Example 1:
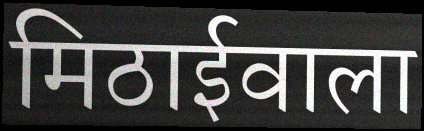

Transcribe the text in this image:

मिठाईवाला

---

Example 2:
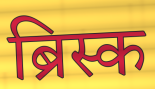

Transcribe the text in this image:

ब्रिस्क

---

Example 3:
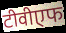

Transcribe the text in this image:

टीवीएफ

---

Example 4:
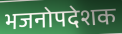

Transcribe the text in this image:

भजनोपदेशक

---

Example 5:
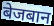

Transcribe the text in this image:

बेजबान